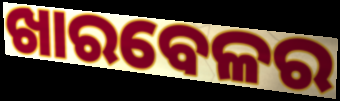
ଖାରବେଳର